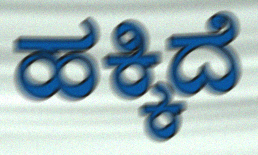
ಹಕ್ಕಿದೆ